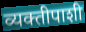
व्यक्तीपाशी